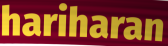
hariharan